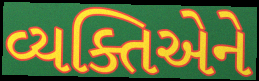
વ્યક્તિએને